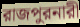
রাজপুরনারী